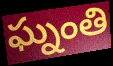
ఘ్నంతి